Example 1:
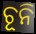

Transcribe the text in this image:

ଚୂନି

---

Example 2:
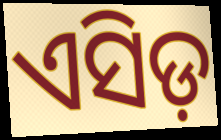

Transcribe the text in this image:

ଏସିଡ଼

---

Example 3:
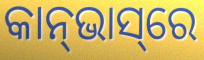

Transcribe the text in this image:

କାନ୍‌ଭାସ୍‌ରେ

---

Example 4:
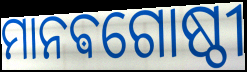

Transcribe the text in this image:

ମାନଵଗୋଷ୍ଠୀ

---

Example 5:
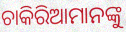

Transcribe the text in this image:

ଚାକିରିଆମାନଙ୍କୁ